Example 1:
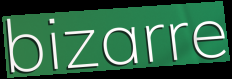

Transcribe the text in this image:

bizarre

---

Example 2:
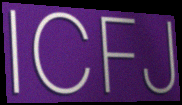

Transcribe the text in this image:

ICFJ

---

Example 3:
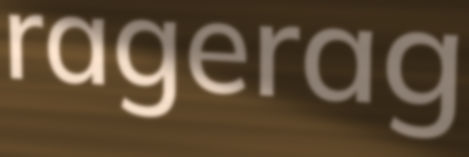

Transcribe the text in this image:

ragerag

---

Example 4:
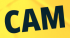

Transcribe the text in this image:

CAM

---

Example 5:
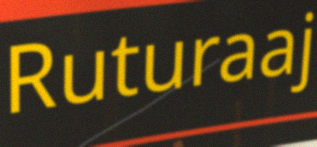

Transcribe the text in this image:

Ruturaaj